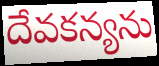
దేవకన్యను